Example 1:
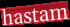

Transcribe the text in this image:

hastam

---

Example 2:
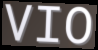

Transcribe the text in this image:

VIO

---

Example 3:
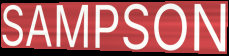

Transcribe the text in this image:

SAMPSON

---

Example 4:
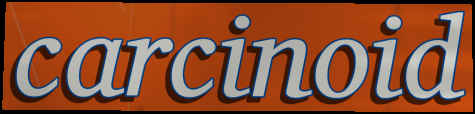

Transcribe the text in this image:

carcinoid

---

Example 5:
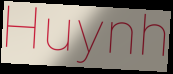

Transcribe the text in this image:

Huynh